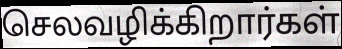
செலவழிக்கிறார்கள்